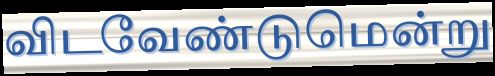
விடவேண்டுமென்று